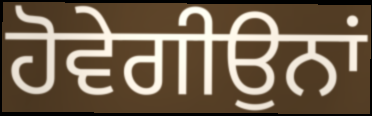
ਹੋਵੇਗੀਉਨਾਂ